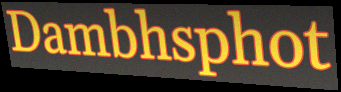
Dambhsphot